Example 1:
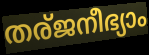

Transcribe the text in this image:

തര്ജനീഭ്യാം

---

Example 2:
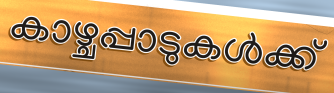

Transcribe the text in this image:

കാഴ്ചപ്പാടുകൾക്ക്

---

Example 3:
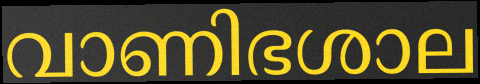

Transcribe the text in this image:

വാണിഭശാല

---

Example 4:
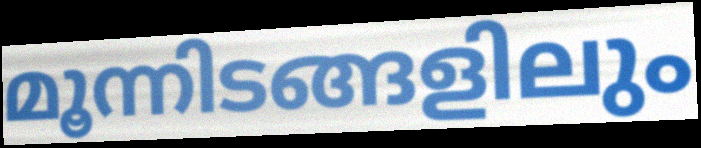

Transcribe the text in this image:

മൂന്നിടങ്ങളിലും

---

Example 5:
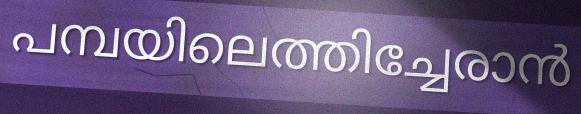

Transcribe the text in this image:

പമ്പയിലെത്തിച്ചേരാൻ